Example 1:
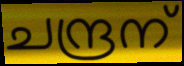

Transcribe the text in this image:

ചന്ദ്രന്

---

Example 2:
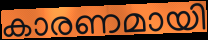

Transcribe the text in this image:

കാരണമായി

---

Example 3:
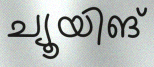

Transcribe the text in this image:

ച്യൂയിങ്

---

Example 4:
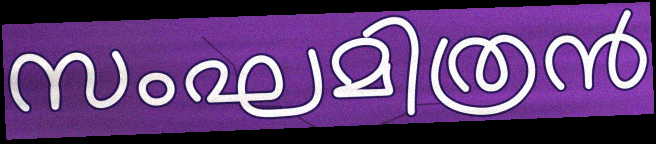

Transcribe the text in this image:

സംഘമിത്രൻ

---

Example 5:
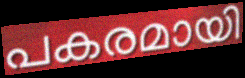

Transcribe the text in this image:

പകരമായി